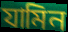
যামিন